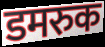
डमरुक